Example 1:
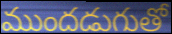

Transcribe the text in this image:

ముందడుగుతో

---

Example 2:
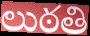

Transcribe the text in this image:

లుఠతి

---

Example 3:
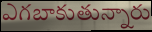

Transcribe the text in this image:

ఎగబాకుతున్నారు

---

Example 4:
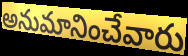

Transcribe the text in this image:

అనుమానించేవారు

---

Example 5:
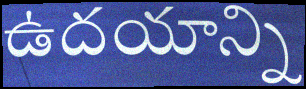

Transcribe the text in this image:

ఉదయాన్ని